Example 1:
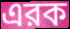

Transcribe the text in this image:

এরক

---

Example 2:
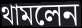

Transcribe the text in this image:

থামলেন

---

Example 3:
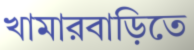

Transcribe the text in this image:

খামারবাড়িতে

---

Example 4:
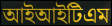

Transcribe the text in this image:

আইআইটিএম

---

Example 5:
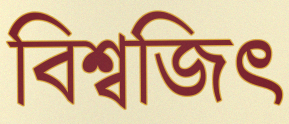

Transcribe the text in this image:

বিশ্বজিৎ